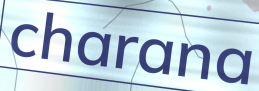
charana